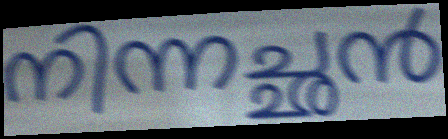
നിന്നച്ഛൻ